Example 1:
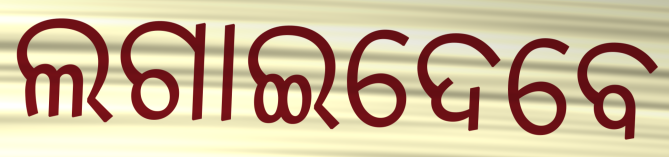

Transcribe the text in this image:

ଲଗାଇଦେବେ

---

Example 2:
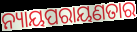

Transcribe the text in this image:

ନ୍ୟାୟପରାୟଣତାର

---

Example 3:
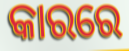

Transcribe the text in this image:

କାରରେ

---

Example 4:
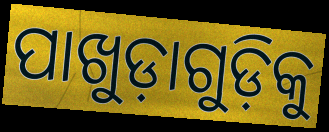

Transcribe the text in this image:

ପାଖୁଡ଼ାଗୁଡ଼ିକୁ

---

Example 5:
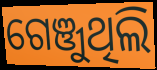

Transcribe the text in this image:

ଗେଞ୍ଜୁଥିଲି